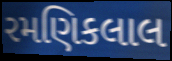
રમણિકલાલ